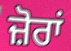
ਜ਼ੋਰਾਂ